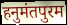
हनुमंतपुरम